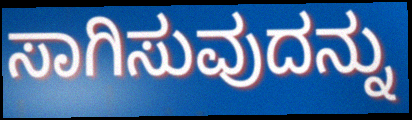
ಸಾಗಿಸುವುದನ್ನು